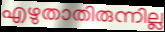
എഴുതാതിരുന്നില്ല